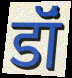
डॉं